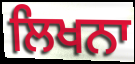
ਲਿਖਨਾ